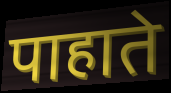
पाहाते